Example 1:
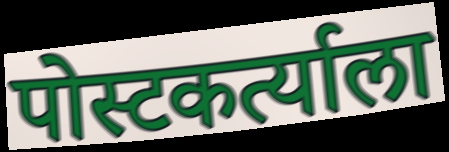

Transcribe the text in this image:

पोस्टकर्त्याला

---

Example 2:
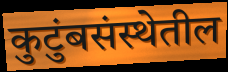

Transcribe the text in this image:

कुटुंबसंस्थेतील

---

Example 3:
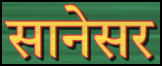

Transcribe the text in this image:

सानेसर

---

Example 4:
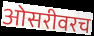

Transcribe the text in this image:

ओसरीवरच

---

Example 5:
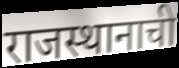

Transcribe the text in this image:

राजस्थानाची